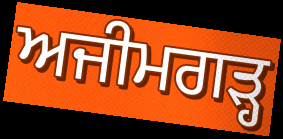
ਅਜੀਮਗੜ੍ਹ